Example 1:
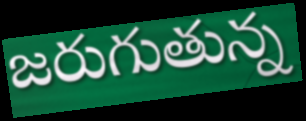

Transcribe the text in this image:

జరుగుతున్న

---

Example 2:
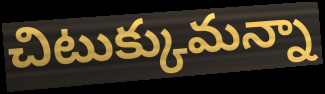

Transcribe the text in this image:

చిటుక్కుమన్నా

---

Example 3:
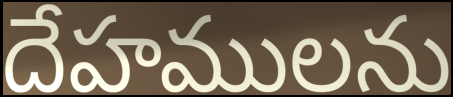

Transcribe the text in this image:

దేహములను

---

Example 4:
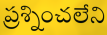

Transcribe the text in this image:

ప్రశ్నించలేని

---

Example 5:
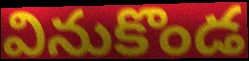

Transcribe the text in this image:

వినుకొండ